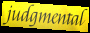
judgmental